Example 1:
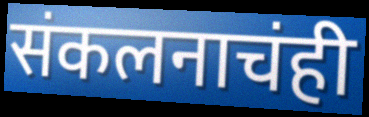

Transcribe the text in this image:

संकलनाचंही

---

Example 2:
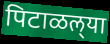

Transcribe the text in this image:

पिटाळल्या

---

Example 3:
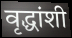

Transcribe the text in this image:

वृद्धांशी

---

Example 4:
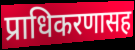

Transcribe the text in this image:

प्राधिकरणासह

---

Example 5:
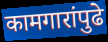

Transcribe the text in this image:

कामगारांपुढे